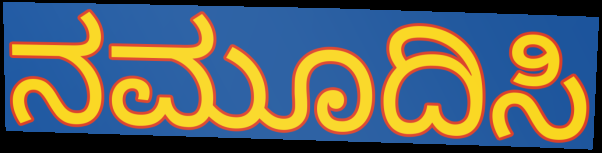
ನಮೂದಿಸಿ